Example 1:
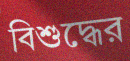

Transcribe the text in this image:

বিশুদ্ধের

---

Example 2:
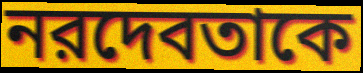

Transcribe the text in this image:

নরদেবতাকে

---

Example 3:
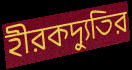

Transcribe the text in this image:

হীরকদ্যুতির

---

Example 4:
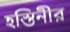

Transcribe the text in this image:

হস্তিনীর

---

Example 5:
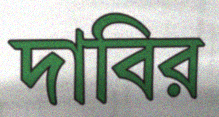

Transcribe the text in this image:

দাবির